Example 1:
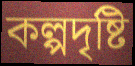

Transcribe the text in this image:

কল্পদৃষ্টি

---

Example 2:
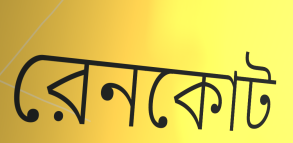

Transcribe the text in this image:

রেনকোট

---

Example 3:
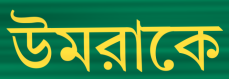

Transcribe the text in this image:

উমরাকে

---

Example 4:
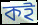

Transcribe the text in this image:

কই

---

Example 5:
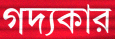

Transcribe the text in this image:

গদ্যকার